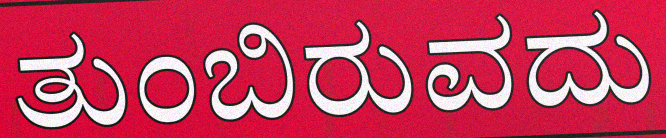
ತುಂಬಿರುವದು